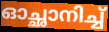
ഓച്ഛാനിച്ച്